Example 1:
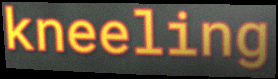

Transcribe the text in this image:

kneeling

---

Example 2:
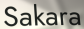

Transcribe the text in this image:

Sakara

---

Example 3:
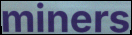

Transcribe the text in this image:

miners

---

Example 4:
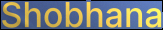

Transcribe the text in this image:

Shobhana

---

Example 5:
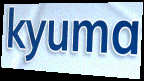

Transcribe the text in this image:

kyuma